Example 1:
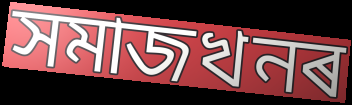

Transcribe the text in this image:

সমাজখনৰ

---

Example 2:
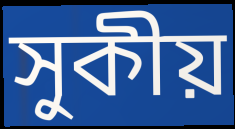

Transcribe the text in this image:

সুকীয়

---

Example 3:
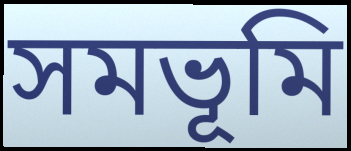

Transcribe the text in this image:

সমভূমি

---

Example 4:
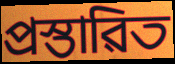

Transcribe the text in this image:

প্ৰস্তাৱিত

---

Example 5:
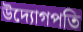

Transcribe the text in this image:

উদ্যোগপতি